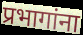
प्रभागांना